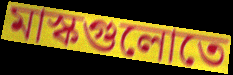
মাস্কগুলোতে